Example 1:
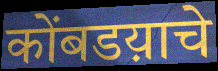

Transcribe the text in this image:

कोंबडय़ाचे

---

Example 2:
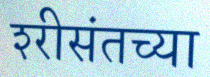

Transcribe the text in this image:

श्रीसंतच्या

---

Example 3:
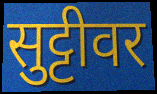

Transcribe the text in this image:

सुट्टीवर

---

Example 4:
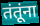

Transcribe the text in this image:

तंतूंना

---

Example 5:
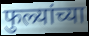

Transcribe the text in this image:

फुल्यांच्या